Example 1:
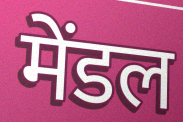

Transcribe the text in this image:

मेंडल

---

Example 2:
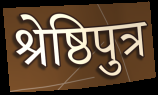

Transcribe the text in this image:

श्रेष्ठिपुत्र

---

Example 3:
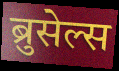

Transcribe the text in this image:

ब्रुसेल्स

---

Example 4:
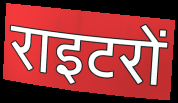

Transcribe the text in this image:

राइटरों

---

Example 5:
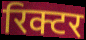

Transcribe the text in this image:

रिक्टर